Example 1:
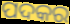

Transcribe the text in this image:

ପଦକର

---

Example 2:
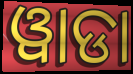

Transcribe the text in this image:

ୱାଡା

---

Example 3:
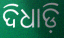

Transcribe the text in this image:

ଦିଧାଡ଼ି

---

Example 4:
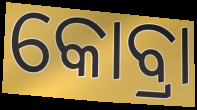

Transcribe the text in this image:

କୋବ୍ରା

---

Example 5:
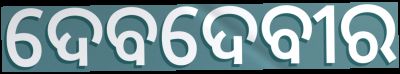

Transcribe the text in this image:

ଦେବଦେବୀର